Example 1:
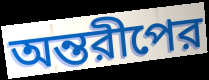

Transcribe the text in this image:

অন্তরীপের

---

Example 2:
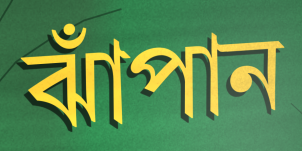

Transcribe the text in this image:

ঝাঁপান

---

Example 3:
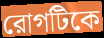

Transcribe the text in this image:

রোগটিকে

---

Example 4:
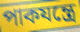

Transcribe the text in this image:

পাকযন্ত্রে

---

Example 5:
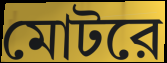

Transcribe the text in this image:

মোটরে